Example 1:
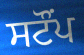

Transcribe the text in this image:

ਸਟੌਂਪ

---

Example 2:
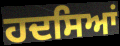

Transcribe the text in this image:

ਹਦਸਿਆਂ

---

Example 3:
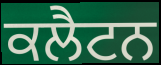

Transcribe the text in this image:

ਕਲੈਟਨ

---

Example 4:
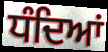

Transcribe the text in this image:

ਧੰਦਿਆਂ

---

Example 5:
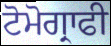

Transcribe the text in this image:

ਟੋਮੋਗ੍ਰਾਫੀ